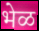
भेळ